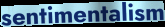
sentimentalism